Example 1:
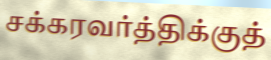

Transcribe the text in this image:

சக்கரவர்த்திக்குத்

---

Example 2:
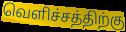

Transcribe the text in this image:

வெளிச்சத்திற்கு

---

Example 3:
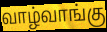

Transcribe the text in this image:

வாழ்வாங்கு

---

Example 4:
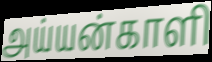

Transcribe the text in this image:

அய்யன்காளி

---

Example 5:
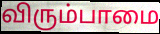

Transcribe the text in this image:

விரும்பாமை